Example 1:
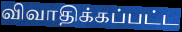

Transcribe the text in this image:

விவாதிக்கப்பட்ட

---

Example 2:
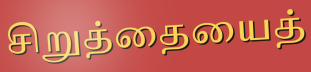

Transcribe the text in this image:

சிறுத்தையைத்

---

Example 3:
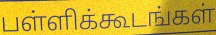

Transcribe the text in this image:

பள்ளிக்கூடங்கள்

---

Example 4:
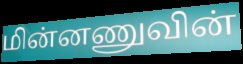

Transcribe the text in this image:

மின்னணுவின்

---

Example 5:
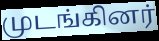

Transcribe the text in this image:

முடங்கினர்